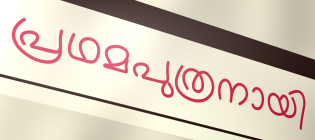
പ്രഥമപുത്രനായി